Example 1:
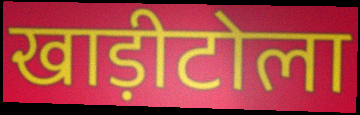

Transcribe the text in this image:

खाड़ीटोला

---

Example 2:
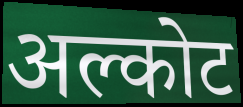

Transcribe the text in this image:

अल्कोट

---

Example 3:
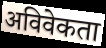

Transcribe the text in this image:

अविवेकता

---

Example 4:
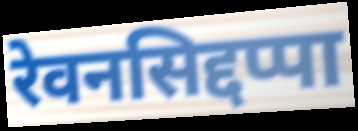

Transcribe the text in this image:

रेवनसिद्दप्पा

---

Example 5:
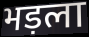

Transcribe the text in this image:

भड़ला